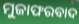
ମୁଜାଫରବାଦ